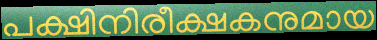
പക്ഷിനിരീക്ഷകനുമായ